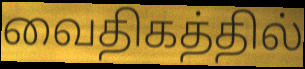
வைதிகத்தில்